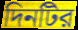
দিনটির